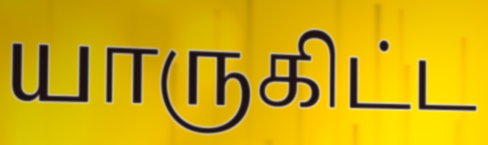
யாருகிட்ட